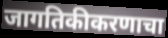
जागतिकीकरणाचा